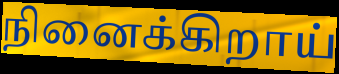
நினைக்கிறாய்